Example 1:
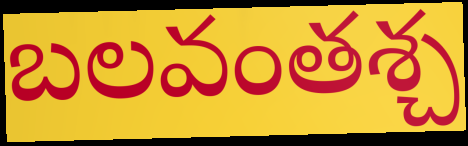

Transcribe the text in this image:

బలవంతశ్చ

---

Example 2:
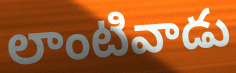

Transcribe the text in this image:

లాంటివాడు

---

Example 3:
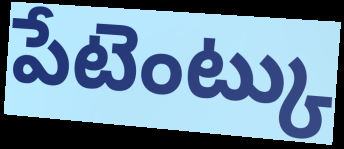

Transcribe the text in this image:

పేటెంట్కు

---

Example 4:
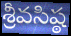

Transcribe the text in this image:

శ్రీవసిష్ఠ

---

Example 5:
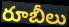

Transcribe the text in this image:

రూబీలు